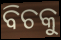
ବିଚକୁ